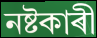
নষ্টকাৰী